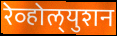
रेव्होल्युशन